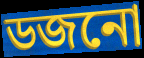
ডজনো